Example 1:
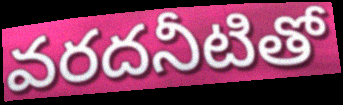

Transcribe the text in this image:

వరదనీటితో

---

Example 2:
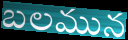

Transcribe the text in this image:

బలమున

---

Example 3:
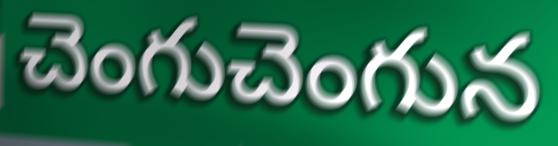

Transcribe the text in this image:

చెంగుచెంగున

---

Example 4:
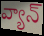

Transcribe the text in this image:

వ్యాన్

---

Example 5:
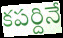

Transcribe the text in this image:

కపర్దినే